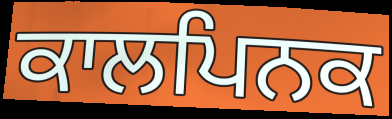
ਕਾਲਪਿਨਕ